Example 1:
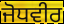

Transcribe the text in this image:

ਜੋਧਵੀਰ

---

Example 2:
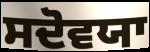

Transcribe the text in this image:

ਸਦੋਵਯਾ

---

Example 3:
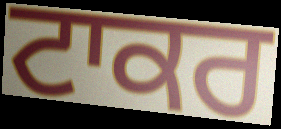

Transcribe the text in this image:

ਟਾਕਰ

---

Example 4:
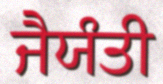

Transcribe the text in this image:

ਜੈਯੰਤੀ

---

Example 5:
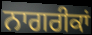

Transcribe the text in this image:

ਨਾਗਰੀਕਾਂ